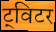
ट्‌विटर